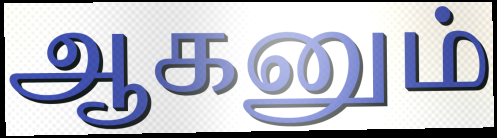
ஆகனும்